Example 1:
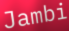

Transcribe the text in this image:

Jambi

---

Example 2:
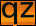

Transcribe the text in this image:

qz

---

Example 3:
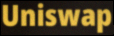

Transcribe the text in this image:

Uniswap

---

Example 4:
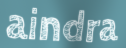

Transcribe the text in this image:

aindra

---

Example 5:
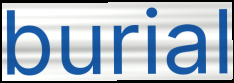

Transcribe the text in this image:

burial